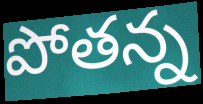
పోతన్న